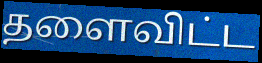
தளைவிட்ட